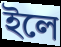
ইলে